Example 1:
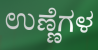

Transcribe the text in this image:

ಉಣ್ಣೆಗಳ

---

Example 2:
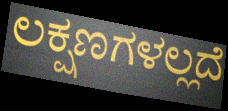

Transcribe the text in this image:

ಲಕ್ಷಣಗಳಲ್ಲದೆ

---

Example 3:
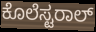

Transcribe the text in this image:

ಕೊಲೆಸ್ಟರಾಲ್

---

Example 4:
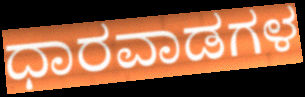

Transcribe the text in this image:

ಧಾರವಾಡಗಳ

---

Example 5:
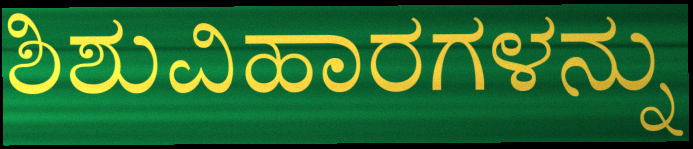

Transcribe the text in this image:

ಶಿಶುವಿಹಾರಗಳನ್ನು